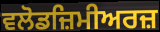
ਵਲੋਡਜ਼ਿਮੀਅਰਜ਼